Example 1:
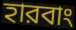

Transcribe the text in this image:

হারবাং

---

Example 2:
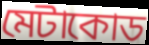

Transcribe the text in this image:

মেটাকোড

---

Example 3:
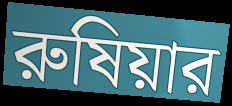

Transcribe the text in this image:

রুষিয়ার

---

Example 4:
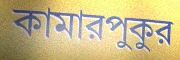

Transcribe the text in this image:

কামারপুকুর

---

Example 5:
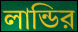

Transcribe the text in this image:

লান্ডির